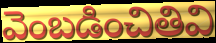
వెంబడించితివి